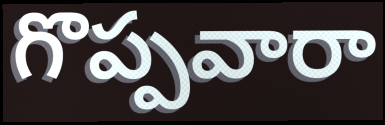
గొప్పవారా